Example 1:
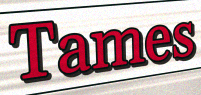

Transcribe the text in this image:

Tames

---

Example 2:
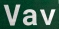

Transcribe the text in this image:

Vav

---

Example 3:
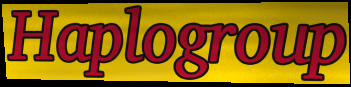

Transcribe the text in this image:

Haplogroup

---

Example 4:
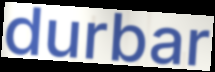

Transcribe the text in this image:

durbar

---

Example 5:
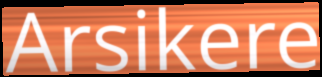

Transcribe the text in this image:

Arsikere